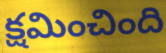
క్షమించింది